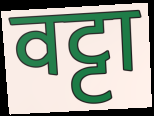
वट्टा